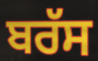
ਬਰੱਸ